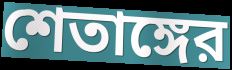
শেতাঙ্গের